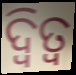
ଦ୍ୱିତ୍ୱ